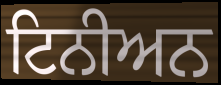
ਟਿਨੀਅਨ